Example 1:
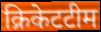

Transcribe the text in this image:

क्रिकेटटीम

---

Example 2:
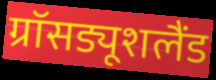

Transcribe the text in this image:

ग्रॉसड्यूशलैंड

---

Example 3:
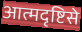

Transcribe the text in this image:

आत्मदृष्टिसे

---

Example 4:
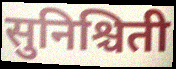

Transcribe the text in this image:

सुनिश्चिती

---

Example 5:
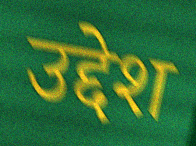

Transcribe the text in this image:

उद्देश